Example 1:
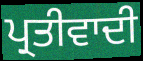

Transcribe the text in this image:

ਪ੍ਰਤੀਵਾਦੀ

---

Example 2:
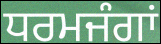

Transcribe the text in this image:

ਧਰਮਜੰਗਾਂ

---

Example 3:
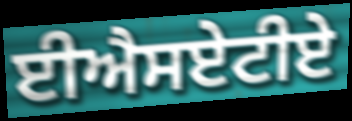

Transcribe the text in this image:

ਈਐਸਏਟੀਏ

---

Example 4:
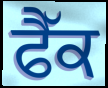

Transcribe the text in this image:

ਫੈੱਕ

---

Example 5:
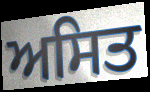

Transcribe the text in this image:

ਅਸਿਤ